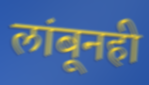
लांबूनही